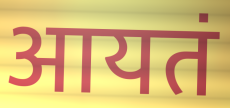
आयतं